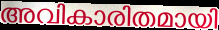
അവികാരിതമായി